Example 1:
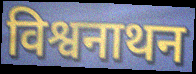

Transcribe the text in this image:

विश्वनाथन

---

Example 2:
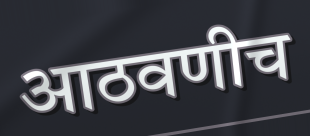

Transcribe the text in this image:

आठवणीच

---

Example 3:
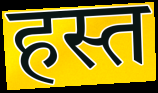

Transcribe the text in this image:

हस्त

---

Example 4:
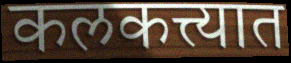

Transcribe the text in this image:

कलकत्त्यात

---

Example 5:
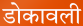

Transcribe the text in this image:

डोकावली